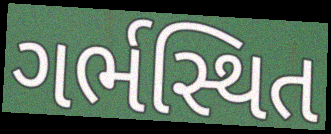
ગર્ભસ્થિત